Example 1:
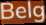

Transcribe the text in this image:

Belg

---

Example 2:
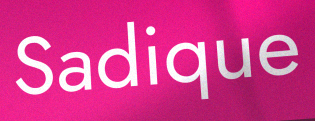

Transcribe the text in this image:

Sadique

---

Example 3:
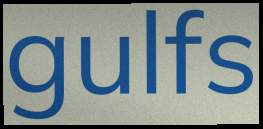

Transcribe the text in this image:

gulfs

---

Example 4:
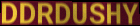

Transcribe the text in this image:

DDRDUSHY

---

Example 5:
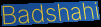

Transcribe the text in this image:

Badshahi